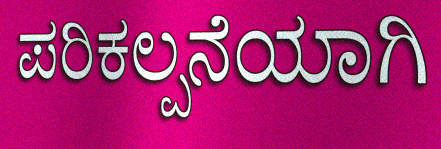
ಪರಿಕಲ್ಪನೆಯಾಗಿ